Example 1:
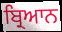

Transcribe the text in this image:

ਬ੍ਰਿਆਨ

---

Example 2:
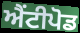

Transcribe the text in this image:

ਐਂਟੀਪੋਡ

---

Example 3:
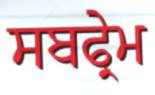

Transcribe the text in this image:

ਸਬਫ੍ਰੇਮ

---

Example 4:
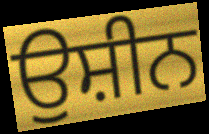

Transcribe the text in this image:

ਉਸ਼ੀਨ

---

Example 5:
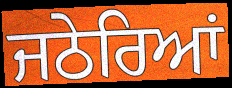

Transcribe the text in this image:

ਜਠੇਰਿਆਂ